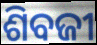
ଶିବଜୀ